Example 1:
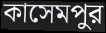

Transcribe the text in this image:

কাসেমপুর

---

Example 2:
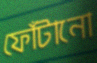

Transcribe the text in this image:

ফোঁটানো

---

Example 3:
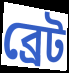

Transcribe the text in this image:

ব্রেট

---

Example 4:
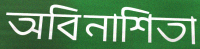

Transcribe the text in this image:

অবিনাশিতা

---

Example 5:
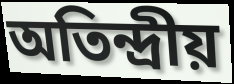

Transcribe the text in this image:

অতিন্দ্রীয়